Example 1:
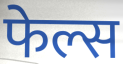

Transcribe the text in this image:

फेल्स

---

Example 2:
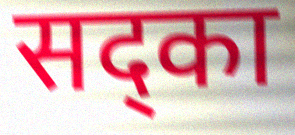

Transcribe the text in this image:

सद्का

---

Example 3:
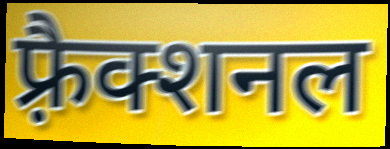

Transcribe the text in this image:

फ़्रैक्शनल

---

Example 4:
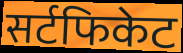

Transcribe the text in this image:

सर्टफिकेट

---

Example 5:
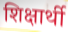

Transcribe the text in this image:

शिक्षार्थी